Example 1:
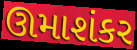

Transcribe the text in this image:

ઊમાશંકર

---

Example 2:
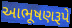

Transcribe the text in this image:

આભૂષણરૂપે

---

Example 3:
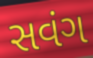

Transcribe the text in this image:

સવંગ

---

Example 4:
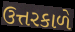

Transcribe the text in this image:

ઉત્તરકાળે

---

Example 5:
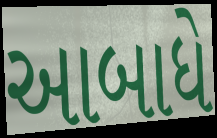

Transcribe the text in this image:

આબાધે